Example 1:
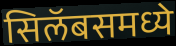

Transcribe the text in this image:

सिलॅबसमध्ये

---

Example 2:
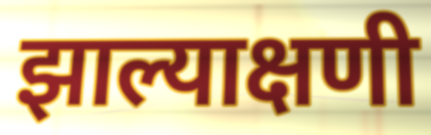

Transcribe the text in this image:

झाल्याक्षणी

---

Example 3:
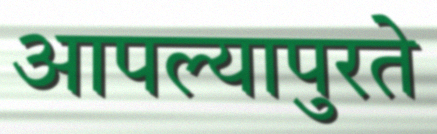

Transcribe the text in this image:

आपल्यापुरते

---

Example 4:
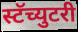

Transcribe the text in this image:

स्टॅच्युटरी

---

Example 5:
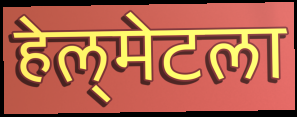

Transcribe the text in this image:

हेल्मेटला